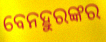
ବେନହୁରଙ୍କର